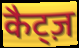
कैट्ज़